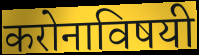
करोनाविषयी